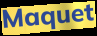
Maquet